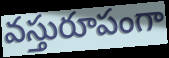
వస్తురూపంగా